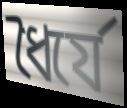
ধৈর্যে